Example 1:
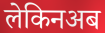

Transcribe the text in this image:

लेकिनअब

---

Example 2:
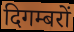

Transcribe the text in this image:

दिगम्बरों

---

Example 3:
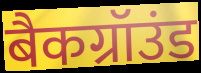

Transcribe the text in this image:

बैकग्रॉउंड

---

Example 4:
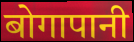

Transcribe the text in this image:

बोगापानी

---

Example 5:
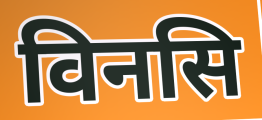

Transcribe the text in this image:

विनसि